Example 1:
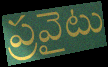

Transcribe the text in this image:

ప్రవైటు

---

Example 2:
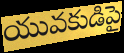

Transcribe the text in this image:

యువకుడిపై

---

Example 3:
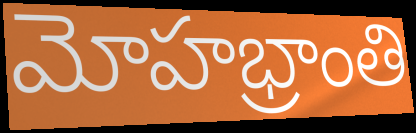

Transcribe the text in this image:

మోహభ్రాంతి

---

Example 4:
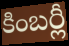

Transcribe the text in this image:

కింబర్లీ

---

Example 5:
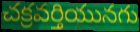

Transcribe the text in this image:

చక్రవర్తియునగు